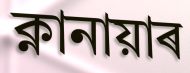
ক্নানায়াৰ